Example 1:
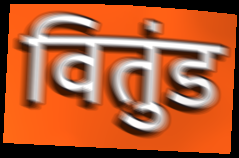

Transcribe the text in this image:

वितुंड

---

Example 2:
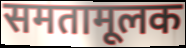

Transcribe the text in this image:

समतामूलक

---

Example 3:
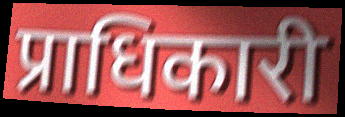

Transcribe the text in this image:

प्राधिकारी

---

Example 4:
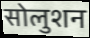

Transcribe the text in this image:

सोलुशन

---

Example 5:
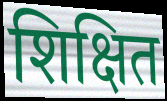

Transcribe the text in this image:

शिक्षित